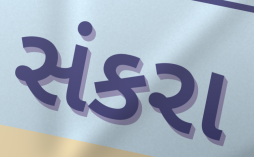
સંકરા